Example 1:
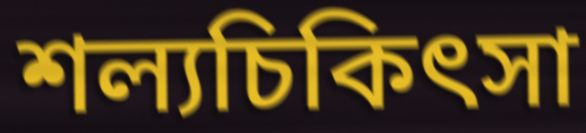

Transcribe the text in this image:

শল্যচিকিৎসা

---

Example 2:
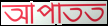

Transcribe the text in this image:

আপাতত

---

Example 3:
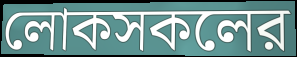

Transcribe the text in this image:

লোকসকলের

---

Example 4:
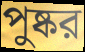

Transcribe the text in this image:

পুষ্কর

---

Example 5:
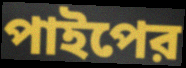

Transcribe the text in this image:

পাইপের